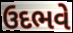
ઉદભવે